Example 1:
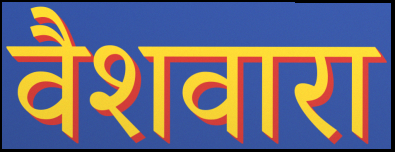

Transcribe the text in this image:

वैशवारा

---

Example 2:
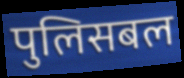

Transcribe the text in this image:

पुलिसबल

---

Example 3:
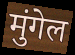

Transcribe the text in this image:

मुंगेल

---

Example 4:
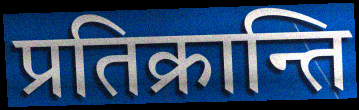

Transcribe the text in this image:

प्रतिक्रान्ति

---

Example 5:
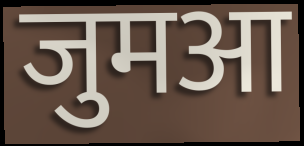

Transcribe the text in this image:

जुमआ